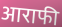
आराफी